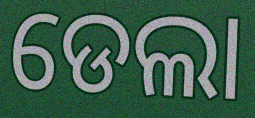
ଡେଲା